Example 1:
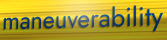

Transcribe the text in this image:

maneuverability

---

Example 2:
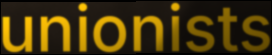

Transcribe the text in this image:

unionists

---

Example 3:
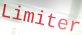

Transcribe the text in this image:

Limiter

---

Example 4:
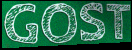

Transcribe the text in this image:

GOST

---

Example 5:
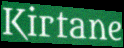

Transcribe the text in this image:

Kirtane